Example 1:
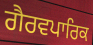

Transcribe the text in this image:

ਗੈਰਵਪਾਰਿਕ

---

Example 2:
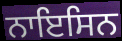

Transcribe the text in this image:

ਨਾਇਸਿਨ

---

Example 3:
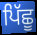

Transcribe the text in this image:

ਪਿੱਛੂ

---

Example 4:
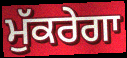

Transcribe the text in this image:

ਮੁੱਕਰੇਗਾ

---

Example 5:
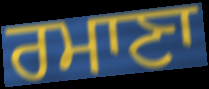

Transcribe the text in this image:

ਰਮਾਣਾ